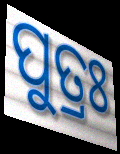
ପୁତ୍ରଃ